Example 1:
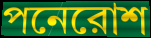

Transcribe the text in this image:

পনেরোশ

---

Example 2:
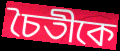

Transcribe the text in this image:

চৈতীকে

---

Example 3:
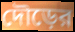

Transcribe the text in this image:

দৌড়ের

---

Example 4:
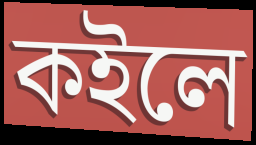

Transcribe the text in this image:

কইলে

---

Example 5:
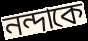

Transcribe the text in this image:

নন্দাকে